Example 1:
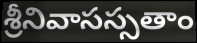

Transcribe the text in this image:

శ్రీనివాసస్సతాం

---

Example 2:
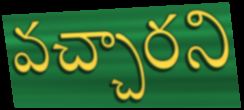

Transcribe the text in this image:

వచ్చారని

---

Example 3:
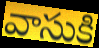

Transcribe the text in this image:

వాసుకి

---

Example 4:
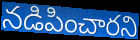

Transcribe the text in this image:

నడిపించారని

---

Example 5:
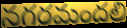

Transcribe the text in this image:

నగరమందలి